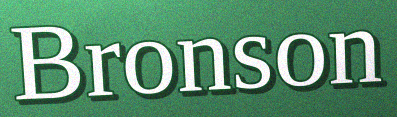
Bronson